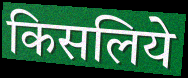
किसलिये